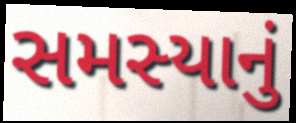
સમસ્યાનું